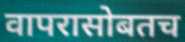
वापरासोबतच